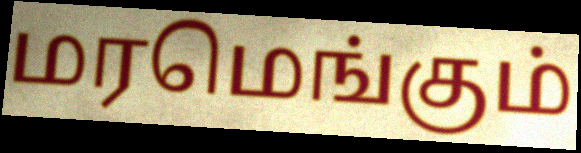
மரமெங்கும்